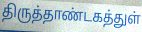
திருத்தாண்டகத்துள்